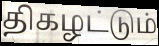
திகழட்டும்